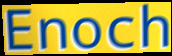
Enoch